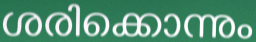
ശരിക്കൊന്നും